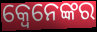
କ୍ବେନେଙ୍କର